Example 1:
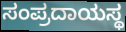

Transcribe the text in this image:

ಸಂಪ್ರದಾಯಸ್ಥ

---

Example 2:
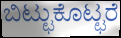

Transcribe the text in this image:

ಬಿಟ್ಟುಕೊಟ್ಟರೆ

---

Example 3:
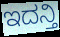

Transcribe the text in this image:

ಇದನ್ತಿ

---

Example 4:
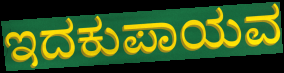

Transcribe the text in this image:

ಇದಕುಪಾಯವ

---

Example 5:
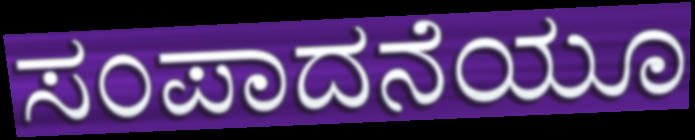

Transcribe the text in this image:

ಸಂಪಾದನೆಯೂ